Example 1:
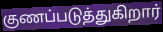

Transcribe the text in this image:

குணப்படுத்துகிறார்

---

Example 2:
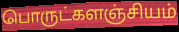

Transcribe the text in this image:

பொருட்களஞ்சியம்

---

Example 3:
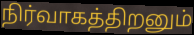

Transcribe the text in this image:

நிர்வாகத்திறனும்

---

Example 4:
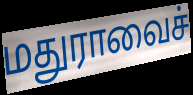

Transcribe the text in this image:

மதுராவைச்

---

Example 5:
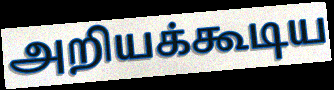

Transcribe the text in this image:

அறியக்கூடிய